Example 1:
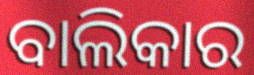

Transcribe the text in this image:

ବାଲିକାର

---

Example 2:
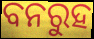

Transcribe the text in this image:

ବନରୁହ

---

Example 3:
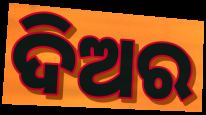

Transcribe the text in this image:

ଦିଅର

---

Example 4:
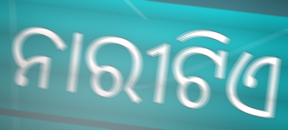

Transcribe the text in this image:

ନାରୀଟିଏ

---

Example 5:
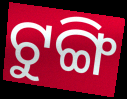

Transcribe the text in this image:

ଟୁଙ୍ଗି